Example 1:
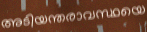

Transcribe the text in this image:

അടിയന്തരാവസ്ഥയെ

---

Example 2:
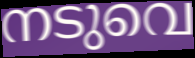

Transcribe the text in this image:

നടുവെ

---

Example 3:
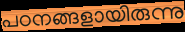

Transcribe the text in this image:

പഠനങ്ങളായിരുന്നു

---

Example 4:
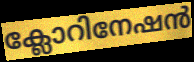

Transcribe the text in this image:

ക്ലോറിനേഷൻ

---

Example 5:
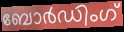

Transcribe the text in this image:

ബോർഡിംഗ്